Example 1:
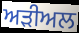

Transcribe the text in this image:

ਅੜੀਅਲ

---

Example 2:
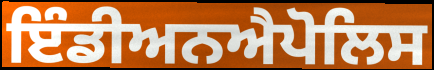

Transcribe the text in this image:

ਇੰਡੀਅਨਐਪੋਲਿਸ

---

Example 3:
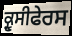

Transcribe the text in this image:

ਕ੍ਰੂਸੀਫੇਰਸ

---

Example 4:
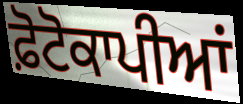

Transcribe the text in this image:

ਫ਼ੋਟੋਕਾਪੀਆਂ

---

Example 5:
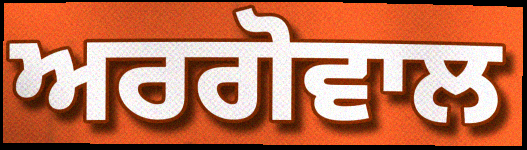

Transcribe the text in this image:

ਅਰਗੋਵਾਲ